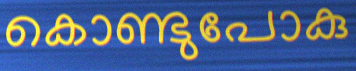
കൊണ്ടുപോകു